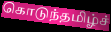
கொடுந்தமிழ்ச்